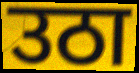
उठा